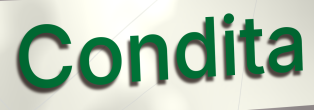
Condita